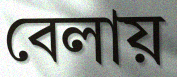
বেলায়